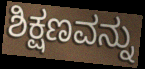
ಶಿಕ್ಷಣವನ್ನು